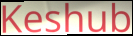
Keshub